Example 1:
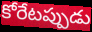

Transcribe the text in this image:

కోరేటప్పుడు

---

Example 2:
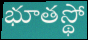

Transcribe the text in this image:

భూతస్థో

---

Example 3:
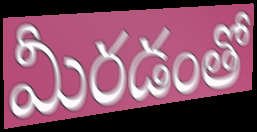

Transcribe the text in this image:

మీరడంతో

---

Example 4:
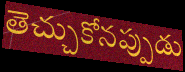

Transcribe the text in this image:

తెచ్చుకోనప్పుడు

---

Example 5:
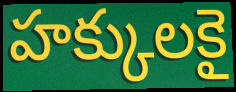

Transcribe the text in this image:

హక్కులకై